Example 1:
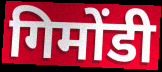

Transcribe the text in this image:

गिमोंडी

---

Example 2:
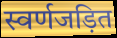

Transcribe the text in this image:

स्वर्णजड़ित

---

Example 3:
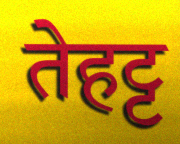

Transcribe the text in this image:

तेहट्ट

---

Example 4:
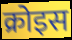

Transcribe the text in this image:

क्रोइस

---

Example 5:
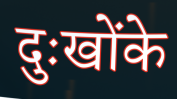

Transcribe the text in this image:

दुःखोंके